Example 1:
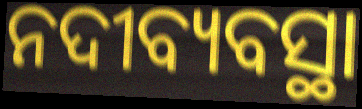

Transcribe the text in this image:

ନଦୀବ୍ୟବସ୍ଥା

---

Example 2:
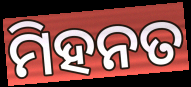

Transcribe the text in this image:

ମିହନତ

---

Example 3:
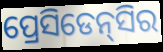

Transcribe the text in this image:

ପ୍ରେସିଡେନ୍‌ସିର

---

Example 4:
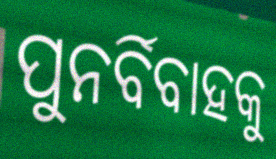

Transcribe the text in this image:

ପୁନର୍ବିବାହକୁ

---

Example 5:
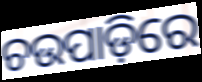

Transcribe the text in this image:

ଚଉପାଡ଼ିରେ